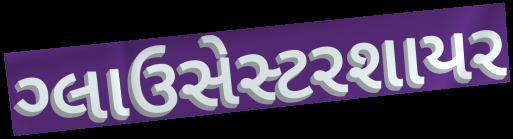
ગ્લાઉસેસ્ટરશાયર